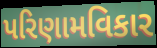
પરિણામવિકાર